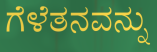
ಗೆಳೆತನವನ್ನು